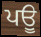
ਪਉੂ